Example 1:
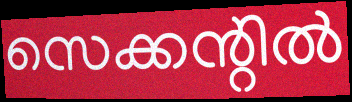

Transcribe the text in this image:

സെക്കന്റിൽ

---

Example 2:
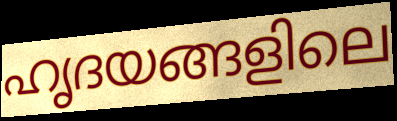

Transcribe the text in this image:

ഹൃദയങ്ങളിലെ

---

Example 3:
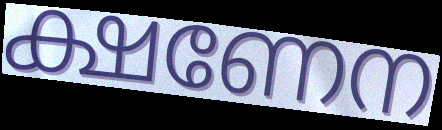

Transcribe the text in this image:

ക്ഷണേന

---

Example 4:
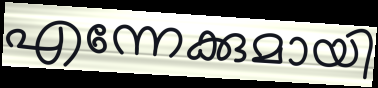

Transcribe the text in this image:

എന്നേക്കുമായി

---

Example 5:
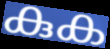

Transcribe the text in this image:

കുക